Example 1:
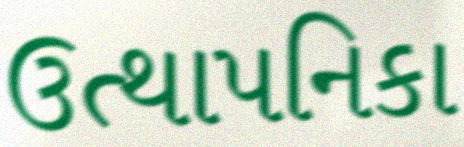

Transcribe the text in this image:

ઉત્થાપનિકા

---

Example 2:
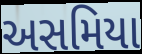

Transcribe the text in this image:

અસમિયા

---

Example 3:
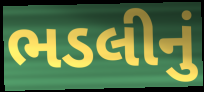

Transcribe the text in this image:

ભડલીનું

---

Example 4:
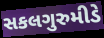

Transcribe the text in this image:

સકલગુરુમીડે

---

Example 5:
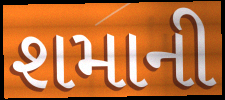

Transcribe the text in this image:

શમાની